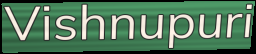
Vishnupuri